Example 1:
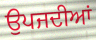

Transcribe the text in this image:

ਉਪਜਦੀਆਂ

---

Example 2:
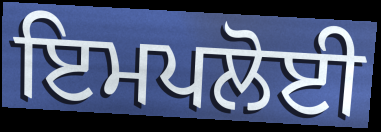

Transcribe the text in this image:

ਇਮਪਲੋਈ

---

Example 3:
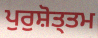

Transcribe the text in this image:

ਪੁਰੁਸ਼ੋਤ੍ਤਮ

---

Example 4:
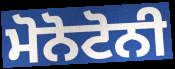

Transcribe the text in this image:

ਮੋਨੋਟੋਨੀ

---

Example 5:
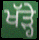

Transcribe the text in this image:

ਖੱੜ੍ਹੇ